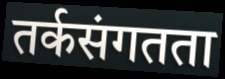
तर्कसंगतता